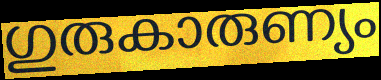
ഗുരുകാരുണ്യം